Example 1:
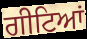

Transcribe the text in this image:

ਗੀਟਿਆਂ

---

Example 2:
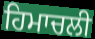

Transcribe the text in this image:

ਹਿਮਾਚਲੀ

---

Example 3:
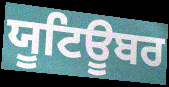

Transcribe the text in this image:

ਯੂਟਿਊਬਰ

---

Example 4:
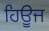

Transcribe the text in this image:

ਹਿਊਜ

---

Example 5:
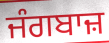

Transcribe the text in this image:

ਜੰਗਬਾਜ਼